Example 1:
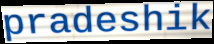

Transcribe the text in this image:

pradeshik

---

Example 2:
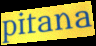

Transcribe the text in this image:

pitana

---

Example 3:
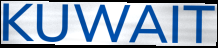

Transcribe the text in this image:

KUWAIT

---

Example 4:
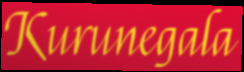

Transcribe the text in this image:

Kurunegala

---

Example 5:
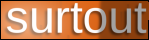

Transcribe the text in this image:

surtout